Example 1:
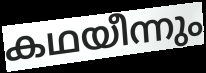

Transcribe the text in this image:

കഥയീന്നും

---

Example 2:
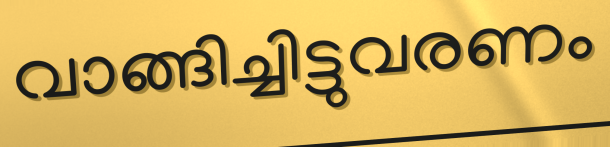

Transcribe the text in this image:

വാങ്ങിച്ചിട്ടുവരണം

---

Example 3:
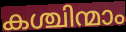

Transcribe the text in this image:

കശ്ചിന്മാം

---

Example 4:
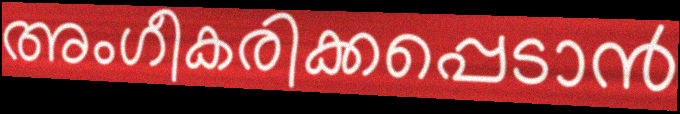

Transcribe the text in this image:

അംഗീകരിക്കപ്പെടാൻ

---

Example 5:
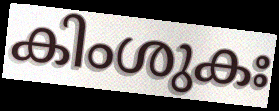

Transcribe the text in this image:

കിംശുകഃ